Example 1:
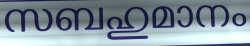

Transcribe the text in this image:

സബഹുമാനം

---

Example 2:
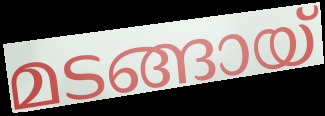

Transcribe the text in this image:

മടങ്ങായ്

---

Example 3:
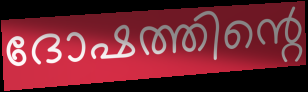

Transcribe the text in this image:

ദോഷത്തിന്റെ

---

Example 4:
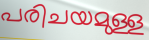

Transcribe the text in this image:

പരിചയമുള്ള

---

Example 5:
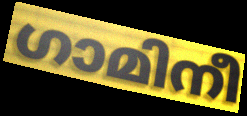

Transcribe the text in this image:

ഗാമിനീ